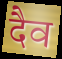
दैव